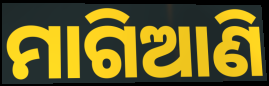
ମାଗିଆଣି